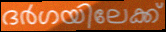
ദർഗയിലേക്ക്